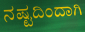
ನಷ್ಟದಿಂದಾಗಿ